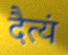
दैत्यं